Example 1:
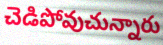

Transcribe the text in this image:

చెడిపోవుచున్నారు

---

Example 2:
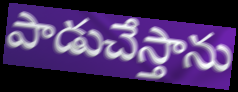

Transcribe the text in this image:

పాడుచేస్తాను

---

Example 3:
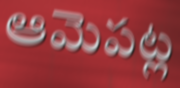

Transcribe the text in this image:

ఆమెపట్ల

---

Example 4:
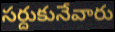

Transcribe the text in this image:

సర్దుకునేవారు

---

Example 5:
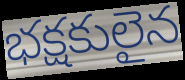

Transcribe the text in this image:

భక్షకులైన